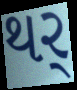
થર્